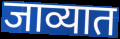
जाव्यात